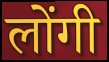
लोंगी